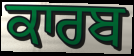
ਕਾਰਬ